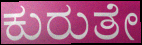
ಕುರುತೇ